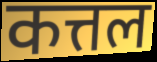
कत्तल